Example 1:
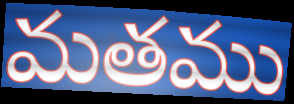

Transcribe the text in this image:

మతము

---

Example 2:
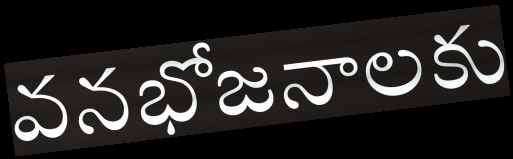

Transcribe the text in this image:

వనభోజనాలకు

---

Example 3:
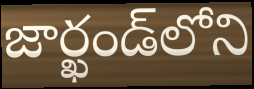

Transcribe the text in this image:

జార్ఖండ్‌లోని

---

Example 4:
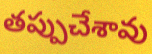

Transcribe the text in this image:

తప్పుచేశావు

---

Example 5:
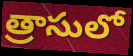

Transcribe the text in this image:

త్రాసులో